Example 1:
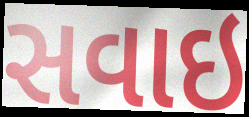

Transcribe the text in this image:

સવાઇ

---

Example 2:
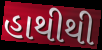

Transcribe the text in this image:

હાથીથી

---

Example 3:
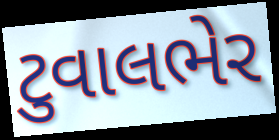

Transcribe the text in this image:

ટુવાલભેર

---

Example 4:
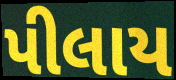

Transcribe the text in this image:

પીલાય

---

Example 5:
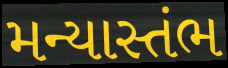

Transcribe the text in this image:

મન્યાસ્તંભ